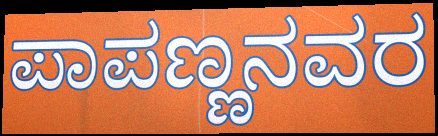
ಪಾಪಣ್ಣನವರ